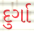
દુર્ગા